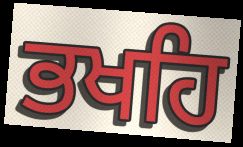
ਭਖਹਿ